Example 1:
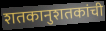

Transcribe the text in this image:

शतकानुशतकांची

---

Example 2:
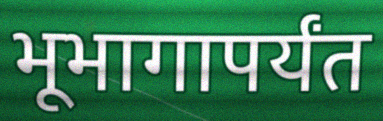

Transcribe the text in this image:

भूभागापर्यंत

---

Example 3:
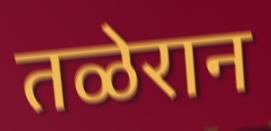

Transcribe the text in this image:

तळेरान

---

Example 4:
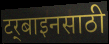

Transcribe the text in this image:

टर्बाइनसाठी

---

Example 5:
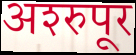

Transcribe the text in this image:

अश्रुपूर